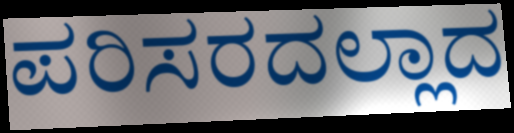
ಪರಿಸರದಲ್ಲಾದ